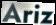
Ariz